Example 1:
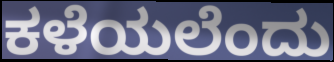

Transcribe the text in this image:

ಕಳೆಯಲೆಂದು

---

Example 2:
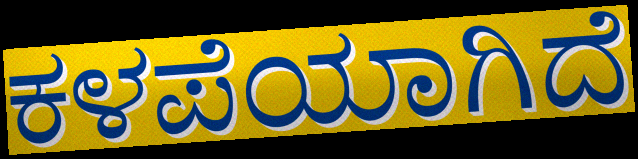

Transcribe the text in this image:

ಕಳಪೆಯಾಗಿದೆ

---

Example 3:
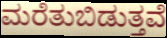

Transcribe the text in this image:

ಮರೆತುಬಿಡುತ್ತವೆ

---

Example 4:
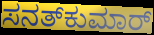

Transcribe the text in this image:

ಸನತ್‌ಕುಮಾರ್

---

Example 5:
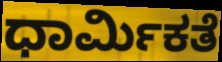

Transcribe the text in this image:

ಧಾರ್ಮಿಕತೆ